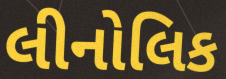
લીનોલિક